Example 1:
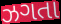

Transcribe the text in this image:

ઝગતા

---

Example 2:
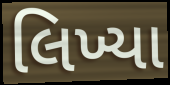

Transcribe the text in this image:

લિખ્યા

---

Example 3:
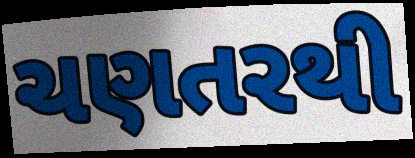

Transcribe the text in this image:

ચણતરથી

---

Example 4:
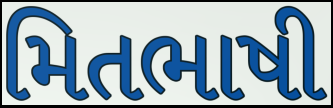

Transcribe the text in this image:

મિતભાષી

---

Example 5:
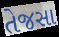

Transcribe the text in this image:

તેજસા